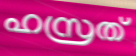
ഹസ്രത്